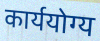
कार्ययोग्य